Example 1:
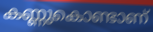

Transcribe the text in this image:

കണ്ണുകൊണ്ടാണ്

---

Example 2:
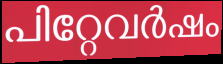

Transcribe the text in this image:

പിറ്റേവർഷം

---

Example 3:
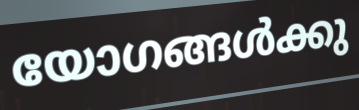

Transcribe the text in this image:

യോഗങ്ങൾക്കു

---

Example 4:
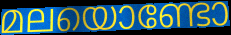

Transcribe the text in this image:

മലയൊണ്ടോ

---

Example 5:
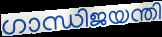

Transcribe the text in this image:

ഗാന്ധിജയന്തി